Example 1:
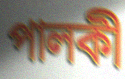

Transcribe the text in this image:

পালকী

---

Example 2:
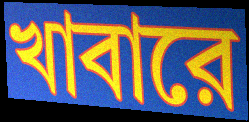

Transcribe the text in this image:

খাবারে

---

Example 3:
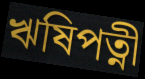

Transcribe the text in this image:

ঋষিপত্নী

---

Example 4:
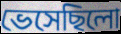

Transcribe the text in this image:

ভেসেছিলো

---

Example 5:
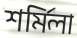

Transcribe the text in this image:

শর্মিলা